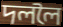
দললৈ